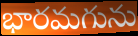
భారమగును